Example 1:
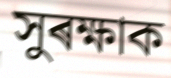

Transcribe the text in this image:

সুৰক্ষাক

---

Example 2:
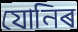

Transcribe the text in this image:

যোনিৰ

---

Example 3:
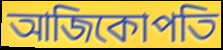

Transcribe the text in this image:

আজিকোপতি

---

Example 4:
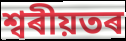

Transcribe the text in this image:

শ্বৰীয়তৰ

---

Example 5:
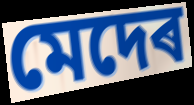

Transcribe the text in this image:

মেদেৰ